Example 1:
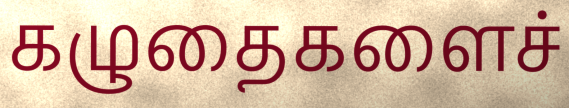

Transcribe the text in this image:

கழுதைகளைச்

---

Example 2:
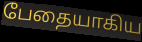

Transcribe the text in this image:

பேதையாகிய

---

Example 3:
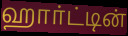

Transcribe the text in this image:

ஹார்ட்டின்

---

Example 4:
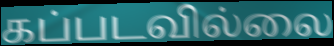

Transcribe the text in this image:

கப்படவில்லை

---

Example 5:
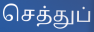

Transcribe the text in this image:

செத்துப்